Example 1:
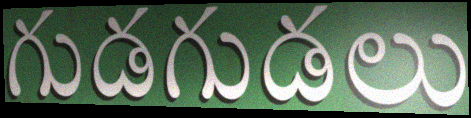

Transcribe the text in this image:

గుడగుడలు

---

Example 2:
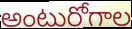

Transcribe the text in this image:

అంటురోగాల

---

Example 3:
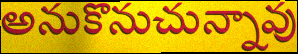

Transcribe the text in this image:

అనుకొనుచున్నావు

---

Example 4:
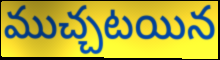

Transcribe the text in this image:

ముచ్చటయిన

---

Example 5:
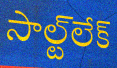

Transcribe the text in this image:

సాల్ట్‌లేక్